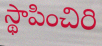
స్థాపించిరి